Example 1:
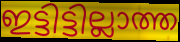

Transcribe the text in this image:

ഇട്ടിട്ടില്ലാത്ത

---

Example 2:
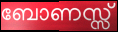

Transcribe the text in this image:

ബോണസ്സ്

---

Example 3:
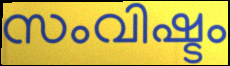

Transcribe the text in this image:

സംവിഷ്ടം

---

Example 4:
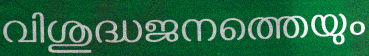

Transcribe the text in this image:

വിശുദ്ധജനത്തെയും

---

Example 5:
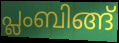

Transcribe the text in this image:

പ്ലംബിങ്ങ്